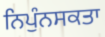
ਨਿਪੁੰਨਸਕਤਾ